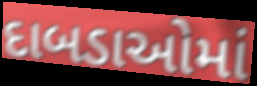
દાબડાઓમાં